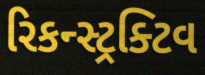
રિકન્સ્ટ્રક્ટિવ